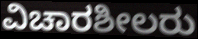
ವಿಚಾರಶೀಲರು